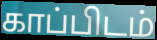
காப்பிடம்